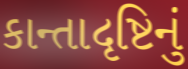
કાન્તાદૃષ્ટિનું